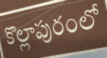
కొల్లాపురంలో